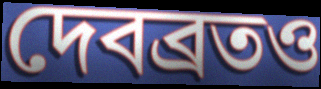
দেবব্রতও